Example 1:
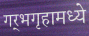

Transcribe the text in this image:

गर्भगृहामध्ये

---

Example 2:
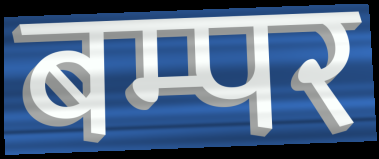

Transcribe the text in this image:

बम्पर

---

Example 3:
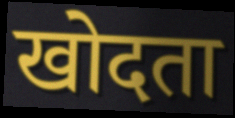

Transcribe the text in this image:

खोदता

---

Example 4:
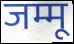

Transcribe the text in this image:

जम्मू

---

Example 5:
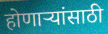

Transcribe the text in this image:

होणाऱ्यांसाठी